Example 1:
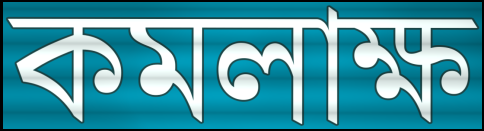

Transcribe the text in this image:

কমলাক্ষ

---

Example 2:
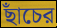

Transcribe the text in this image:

ছাঁচের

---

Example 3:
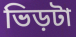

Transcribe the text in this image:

ভিড়টা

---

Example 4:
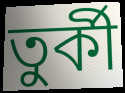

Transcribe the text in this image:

তুর্কী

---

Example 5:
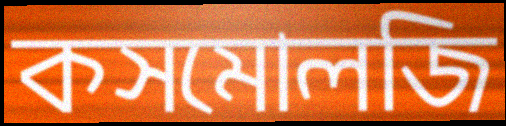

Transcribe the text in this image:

কসমোলজি